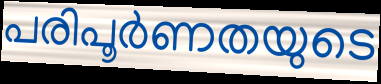
പരിപൂർണതയുടെ